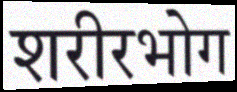
शरीरभोग